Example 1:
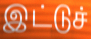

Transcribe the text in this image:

இட்டுச்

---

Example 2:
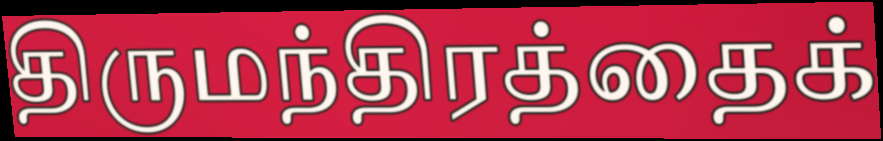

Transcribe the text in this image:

திருமந்திரத்தைக்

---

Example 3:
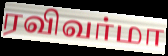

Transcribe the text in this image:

ரவிவர்மா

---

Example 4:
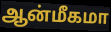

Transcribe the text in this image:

ஆன்மீகமா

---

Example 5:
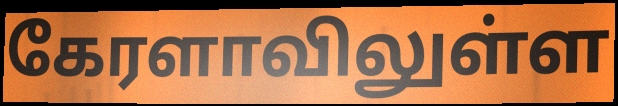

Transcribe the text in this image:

கேரளாவிலுள்ள